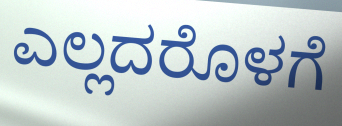
ಎಲ್ಲದರೊಳಗೆ